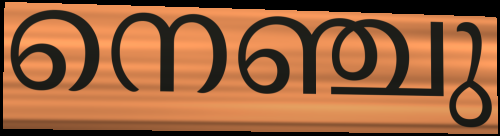
നെഞ്ചു